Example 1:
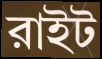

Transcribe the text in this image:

রাইট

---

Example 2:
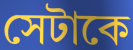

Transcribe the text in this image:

সেটাকে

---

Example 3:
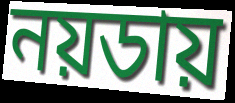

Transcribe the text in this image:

নয়ডায়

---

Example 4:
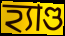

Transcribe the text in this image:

হ্যাণ্ড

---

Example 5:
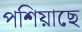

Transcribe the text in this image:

পশিয়াছে